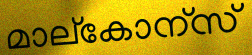
മാല്കോന്സ്